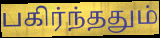
பகிர்ந்ததும்